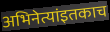
अभिनेत्यांइतकाच